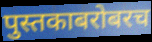
पुस्तकाबरोबरच